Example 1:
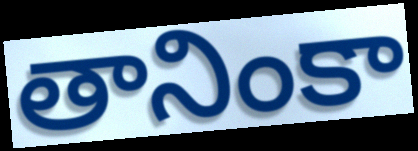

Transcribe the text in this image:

తానింకా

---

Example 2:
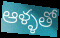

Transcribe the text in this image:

ఆళ్ళతో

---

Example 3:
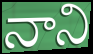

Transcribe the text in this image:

నాని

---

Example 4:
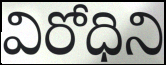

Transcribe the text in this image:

విరోధిని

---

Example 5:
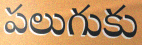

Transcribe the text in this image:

పలుగుకు